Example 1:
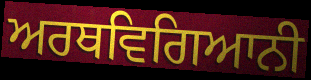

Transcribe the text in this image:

ਅਰਥਵਿਗਿਆਨੀ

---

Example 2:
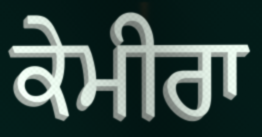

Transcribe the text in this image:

ਕੇਮੀਰਾ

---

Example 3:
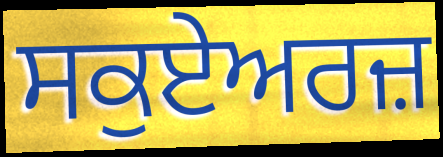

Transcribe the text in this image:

ਸਕੁਏਅਰਜ਼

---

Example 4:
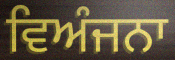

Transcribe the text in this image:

ਵਿਅੰਜਨਾ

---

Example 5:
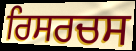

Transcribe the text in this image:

ਰਿਸਰਚਸ